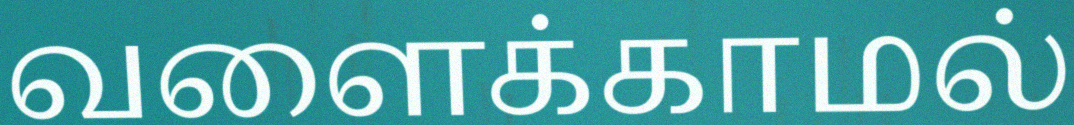
வளைக்காமல்